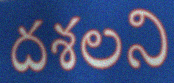
దశలని